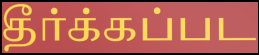
தீர்க்கப்பட